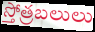
స్తోత్రబలులు